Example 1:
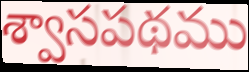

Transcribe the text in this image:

శ్వాసపథము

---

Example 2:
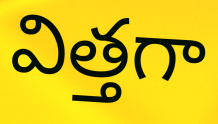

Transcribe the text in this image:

విత్తగా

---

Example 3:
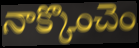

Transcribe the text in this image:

నాక్కొంచెం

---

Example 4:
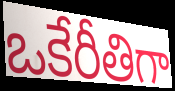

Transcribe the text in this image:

ఒకేరీతిగా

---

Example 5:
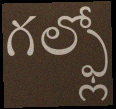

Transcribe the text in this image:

గల్ఫ్లో